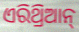
ଏରିଥ୍ରିଆନ୍